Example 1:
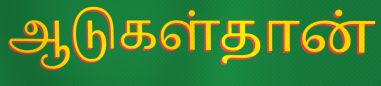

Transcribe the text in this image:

ஆடுகள்தான்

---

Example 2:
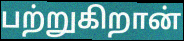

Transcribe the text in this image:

பற்றுகிறான்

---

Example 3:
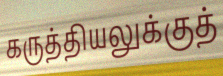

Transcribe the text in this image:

கருத்தியலுக்குத்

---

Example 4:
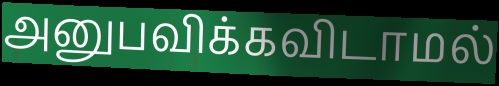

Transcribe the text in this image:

அனுபவிக்கவிடாமல்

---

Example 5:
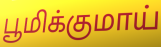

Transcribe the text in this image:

பூமிக்குமாய்